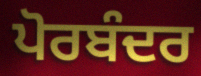
ਪੋਰਬੰਦਰ